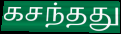
கசந்தது